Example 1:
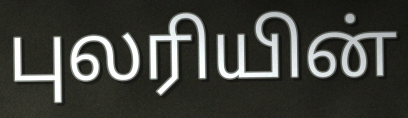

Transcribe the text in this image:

புலரியின்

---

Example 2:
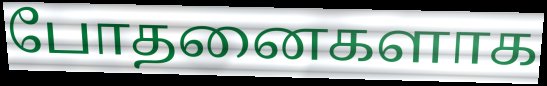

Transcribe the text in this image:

போதனைகளாக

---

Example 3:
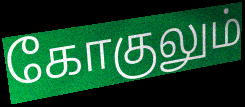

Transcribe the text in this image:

கோகுலும்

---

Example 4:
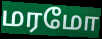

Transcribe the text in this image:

மரமோ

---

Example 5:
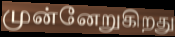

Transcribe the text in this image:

முன்னேறுகிறது